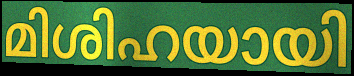
മിശിഹയായി